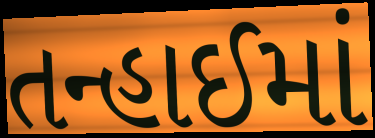
તન્હાઈમાં